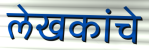
लेखकांचे